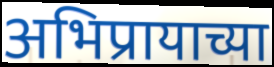
अभिप्रायाच्या